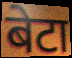
बेटा